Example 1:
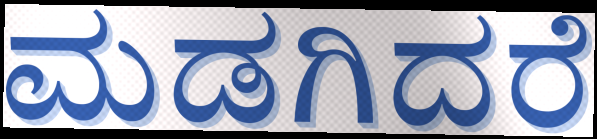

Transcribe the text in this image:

ಮಡಗಿದರೆ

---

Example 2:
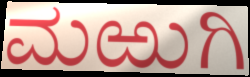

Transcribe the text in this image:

ಮಱುಗಿ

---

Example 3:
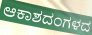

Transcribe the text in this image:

ಆಕಾಶದಂಗಳದ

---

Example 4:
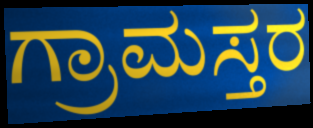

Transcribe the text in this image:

ಗ್ರಾಮಸ್ತರ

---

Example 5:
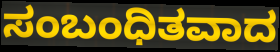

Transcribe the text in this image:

ಸಂಬಂಧಿತವಾದ